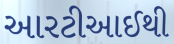
આરટીઆઈથી